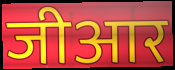
जीआर